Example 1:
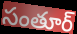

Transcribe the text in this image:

సంతూర్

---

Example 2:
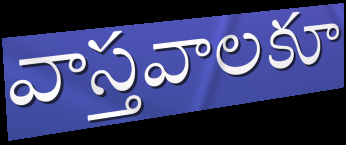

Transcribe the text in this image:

వాస్తవాలకూ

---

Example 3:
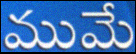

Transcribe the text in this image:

ముమే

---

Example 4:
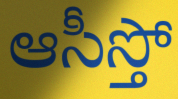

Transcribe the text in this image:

ఆసీస్తో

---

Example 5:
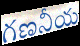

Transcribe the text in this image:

గణనీయ